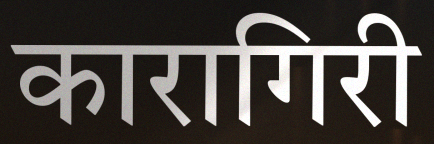
कारागिरी